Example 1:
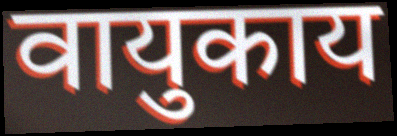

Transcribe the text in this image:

वायुकाय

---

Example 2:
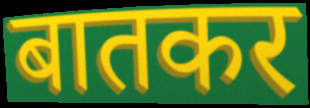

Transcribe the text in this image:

बातकर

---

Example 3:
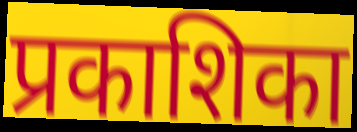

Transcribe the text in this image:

प्रकाशिका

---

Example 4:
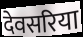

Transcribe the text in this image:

देवसरिया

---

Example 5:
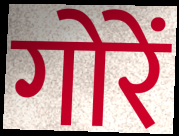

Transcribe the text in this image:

गोरें